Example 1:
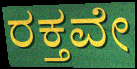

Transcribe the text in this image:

ರಕ್ತವೇ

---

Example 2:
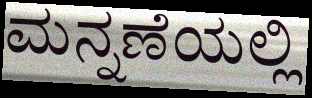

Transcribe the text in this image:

ಮನ್ನಣೆಯಲ್ಲಿ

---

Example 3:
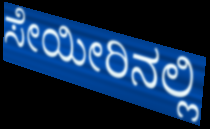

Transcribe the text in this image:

ಸೇಯೀರಿನಲ್ಲಿ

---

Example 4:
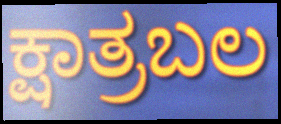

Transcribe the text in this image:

ಕ್ಷಾತ್ರಬಲ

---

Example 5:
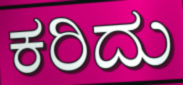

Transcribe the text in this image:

ಕರಿದು